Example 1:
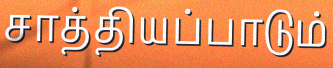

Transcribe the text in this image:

சாத்தியப்பாடும்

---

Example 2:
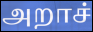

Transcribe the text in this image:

அறாச்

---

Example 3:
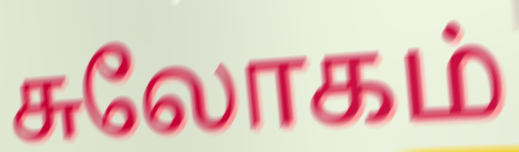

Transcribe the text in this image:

சுலோகம்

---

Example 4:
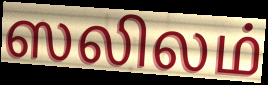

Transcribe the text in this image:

ஸலிலம்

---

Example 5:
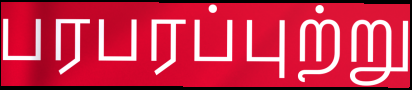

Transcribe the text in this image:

பரபரப்புற்று